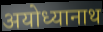
अयोध्यानाथ